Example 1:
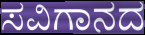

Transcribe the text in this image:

ಸವಿಗಾನದ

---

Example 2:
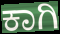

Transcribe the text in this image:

ಕಾಗಿ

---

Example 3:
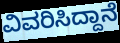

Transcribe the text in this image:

ವಿವರಿಸಿದ್ದಾನೆ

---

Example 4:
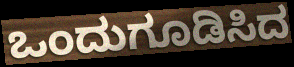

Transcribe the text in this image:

ಒಂದುಗೂಡಿಸಿದ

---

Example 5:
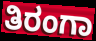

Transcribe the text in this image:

ತಿರಂಗಾ